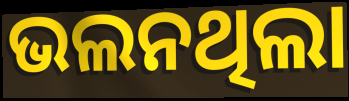
ଭଲନଥିଲା